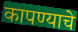
कापण्याचे